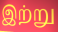
இற்று